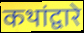
कथांद्वारे